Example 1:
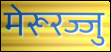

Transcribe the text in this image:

मेरूरज्जु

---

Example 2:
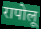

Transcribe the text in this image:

रापोलू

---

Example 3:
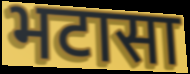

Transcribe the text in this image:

भटासा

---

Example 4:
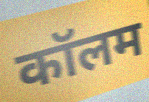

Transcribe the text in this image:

कॉलम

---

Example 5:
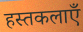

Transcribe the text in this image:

हस्तकलाएँ